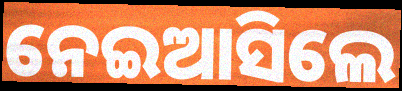
ନେଇଆସିଲେ